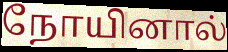
நோயினால்